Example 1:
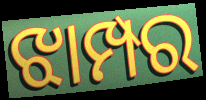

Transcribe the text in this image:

ଝାମ୍ପର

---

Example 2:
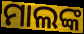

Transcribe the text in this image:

ମାଲଙ୍କ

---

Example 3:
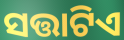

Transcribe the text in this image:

ସତ୍ତାଟିଏ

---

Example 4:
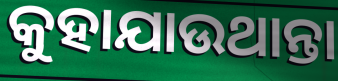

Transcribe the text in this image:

କୁହାଯାଉଥାନ୍ତା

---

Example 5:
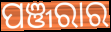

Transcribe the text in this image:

ପଞ୍ଜରାର